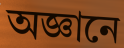
অজ্ঞানে